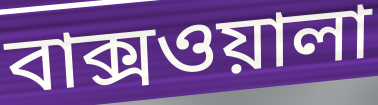
বাক্সওয়ালা